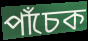
পাঁচেক